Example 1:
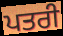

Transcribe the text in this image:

ਪਤਰੀ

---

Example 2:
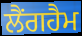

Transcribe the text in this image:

ਲੈਂਗਹੈਮ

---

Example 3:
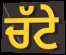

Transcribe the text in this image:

ਚੱਟੇ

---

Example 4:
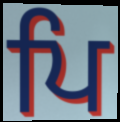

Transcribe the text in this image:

ਪਿ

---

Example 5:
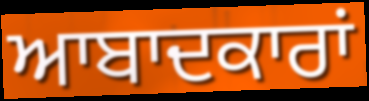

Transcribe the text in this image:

ਆਬਾਦਕਾਰਾਂ